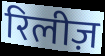
रिलीज़